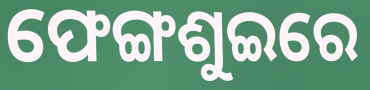
ଫେଙ୍ଗଶୁଇରେ